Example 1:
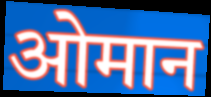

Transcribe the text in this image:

ओमान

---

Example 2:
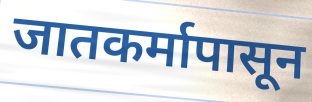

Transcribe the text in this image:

जातकर्मापासून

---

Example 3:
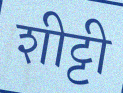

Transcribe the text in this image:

शीट्टी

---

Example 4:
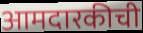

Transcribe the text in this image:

आमदारकीची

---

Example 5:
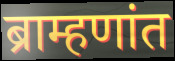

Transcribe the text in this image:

ब्राम्हणांत